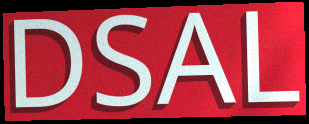
DSAL